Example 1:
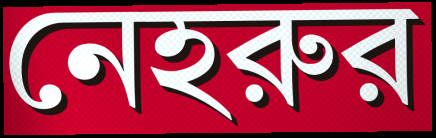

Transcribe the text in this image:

নেহরুর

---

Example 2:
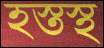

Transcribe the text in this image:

হস্তস্থ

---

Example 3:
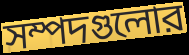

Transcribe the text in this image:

সম্পদগুলোর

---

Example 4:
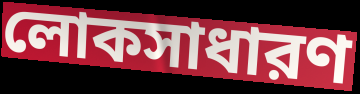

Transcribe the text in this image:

লোকসাধারণ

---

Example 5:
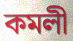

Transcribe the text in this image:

কমলী